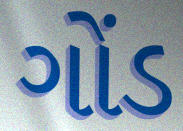
ગોંડ